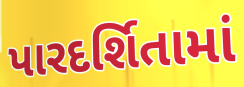
પારદર્શિતામાં